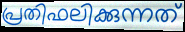
പ്രതിഫലിക്കുന്നത്